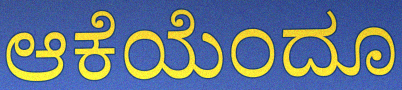
ಆಕೆಯೆಂದೂ